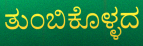
ತುಂಬಿಕೊಳ್ಳದ